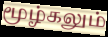
மூழ்கலும்